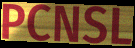
PCNSL